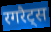
रगरैट्स